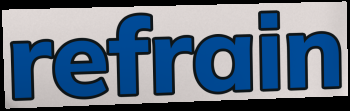
refrain